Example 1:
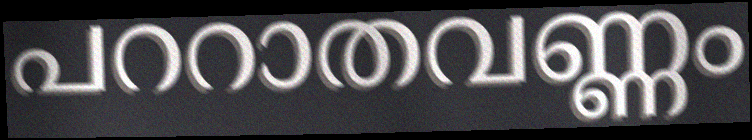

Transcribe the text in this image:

പററാതവണ്ണം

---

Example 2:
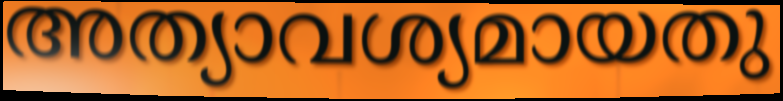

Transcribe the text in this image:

അത്യാവശ്യമായതു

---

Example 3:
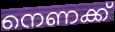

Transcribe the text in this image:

നെണക്ക്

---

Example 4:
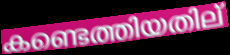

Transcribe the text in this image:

കണ്ടെത്തിയതില്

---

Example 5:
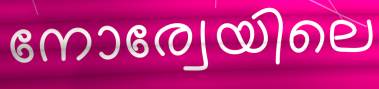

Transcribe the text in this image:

നോര്വേയിലെ